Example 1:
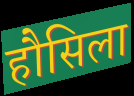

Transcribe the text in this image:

हौसिला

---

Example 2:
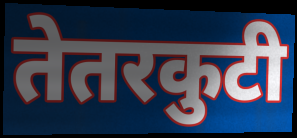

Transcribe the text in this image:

तेतरकुटी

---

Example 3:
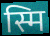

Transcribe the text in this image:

स्मि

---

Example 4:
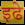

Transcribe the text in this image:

इढे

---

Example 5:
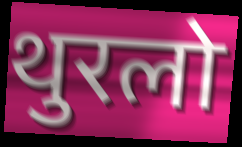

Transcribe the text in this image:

थुरलो